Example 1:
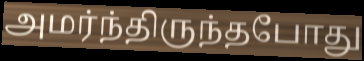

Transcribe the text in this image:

அமர்ந்திருந்தபோது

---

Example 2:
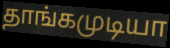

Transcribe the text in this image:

தாங்கமுடியா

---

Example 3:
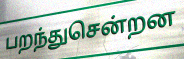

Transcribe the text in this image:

பறந்துசென்றன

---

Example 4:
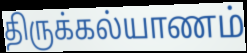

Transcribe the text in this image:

திருக்கல்யாணம்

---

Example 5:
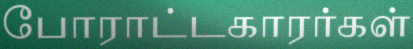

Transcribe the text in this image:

போராட்டகாரர்கள்